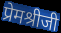
प्रेमश्रीजी